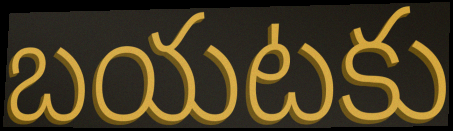
బయటకు